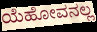
ಯೆಹೋವನಲ್ಲ